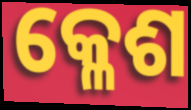
କ୍ଳେଶ